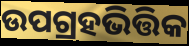
ଉପଗ୍ରହଭିତ୍ତିକ